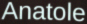
Anatole